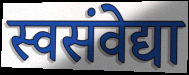
स्वसंवेद्या